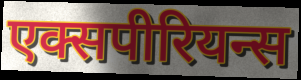
एक्सपीरियन्स